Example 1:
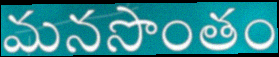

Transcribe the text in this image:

మనసొంతం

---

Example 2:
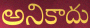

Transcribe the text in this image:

అనికాదు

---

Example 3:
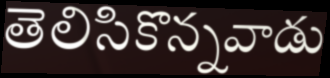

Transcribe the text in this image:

తెలిసికొన్నవాడు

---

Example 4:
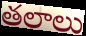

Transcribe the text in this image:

తలాలు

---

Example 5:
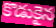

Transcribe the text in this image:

కొడుకైన